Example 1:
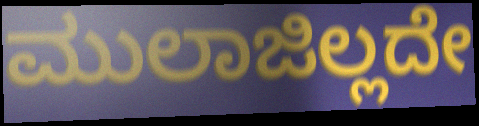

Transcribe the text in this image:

ಮುಲಾಜಿಲ್ಲದೇ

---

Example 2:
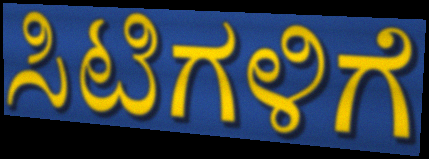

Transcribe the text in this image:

ಸಿಟಿಗಳಿಗೆ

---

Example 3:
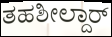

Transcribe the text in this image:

ತಹಶೀಲ್ದಾರ್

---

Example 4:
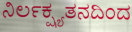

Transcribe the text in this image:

ನಿರ್ಲಕ್ಷ್ಯತನದಿಂದ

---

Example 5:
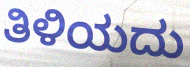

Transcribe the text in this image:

ತಿಳಿಯದು